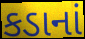
કડાનાં